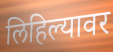
लिहिल्यावर